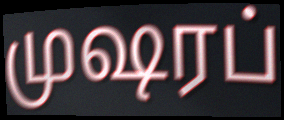
முஷரப்